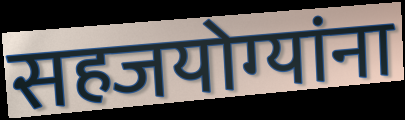
सहजयोग्यांना